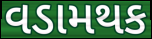
વડામથક